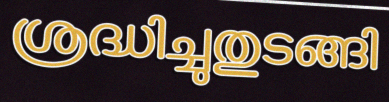
ശ്രദ്ധിച്ചുതുടങ്ങി